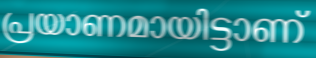
പ്രയാണമായിട്ടാണ്